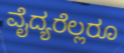
ವೈದ್ಯರೆಲ್ಲರೂ